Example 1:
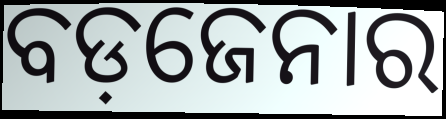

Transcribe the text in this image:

ବଡ଼ଜେନାର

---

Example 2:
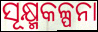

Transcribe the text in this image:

ସୂକ୍ଷ୍ମକଳ୍ପନା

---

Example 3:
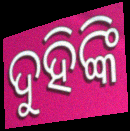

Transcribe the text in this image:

ଦୁହିଙ୍କି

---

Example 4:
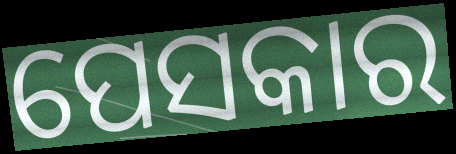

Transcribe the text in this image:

ପେସକାର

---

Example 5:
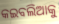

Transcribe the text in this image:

କଇବଲିଆକୁ